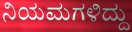
ನಿಯಮಗಳಿದ್ದು